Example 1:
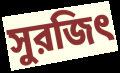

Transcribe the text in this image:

সুরজিৎ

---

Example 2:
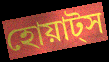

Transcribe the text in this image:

হোয়াট্স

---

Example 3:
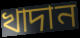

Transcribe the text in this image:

খাদান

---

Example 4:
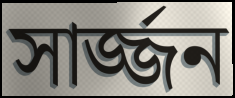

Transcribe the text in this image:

সার্জ্জন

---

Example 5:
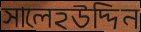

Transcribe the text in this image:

সালেহউদ্দিন